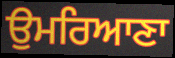
ਉਮਰਿਆਣਾ